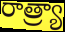
రాత్ర్యా